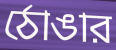
ঠোঙার